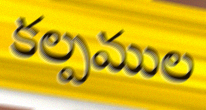
కల్పముల